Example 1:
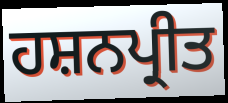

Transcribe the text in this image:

ਹਸ਼ਨਪ੍ਰੀਤ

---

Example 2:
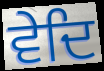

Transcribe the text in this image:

ਵੇਦਿ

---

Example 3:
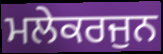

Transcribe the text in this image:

ਮਲੇਕਰਜੁਨ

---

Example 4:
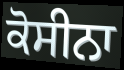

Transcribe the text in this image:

ਕੋਸੀਨਾ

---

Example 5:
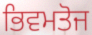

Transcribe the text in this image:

ਭਿਵਮਤੋਜ